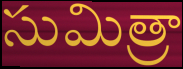
సుమిత్రా